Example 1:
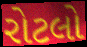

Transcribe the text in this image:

રોટલો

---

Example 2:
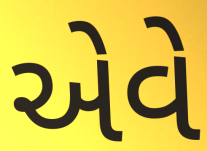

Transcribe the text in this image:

એવે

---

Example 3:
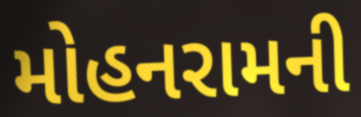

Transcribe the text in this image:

મોહનરામની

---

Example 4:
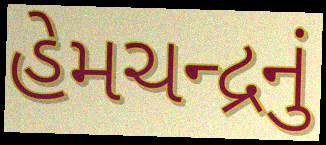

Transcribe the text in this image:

હેમચન્દ્રનું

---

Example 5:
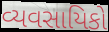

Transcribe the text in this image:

વ્યવસાયિકો